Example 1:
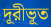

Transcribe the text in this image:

দূরীভূত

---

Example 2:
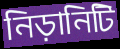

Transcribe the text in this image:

নিড়ানিটি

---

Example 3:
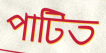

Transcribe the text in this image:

পাটিত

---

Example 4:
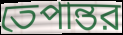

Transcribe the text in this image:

তেপান্তর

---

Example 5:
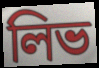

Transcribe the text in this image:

লিভ